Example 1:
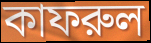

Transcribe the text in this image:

কাফরুল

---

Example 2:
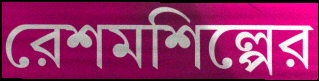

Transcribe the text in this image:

রেশমশিল্পের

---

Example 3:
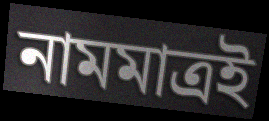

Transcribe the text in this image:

নামমাত্রই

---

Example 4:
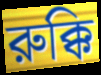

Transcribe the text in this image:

রুক্কি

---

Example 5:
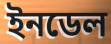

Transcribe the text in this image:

ইনডেল